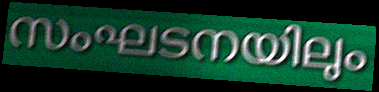
സംഘടനയിലും